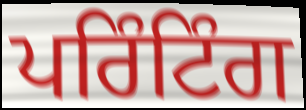
ਪਰਿੰਟਿੰਗ